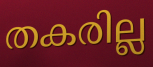
തകരില്ല